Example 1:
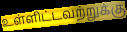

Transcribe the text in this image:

உள்ளிட்டவற்றுக்கு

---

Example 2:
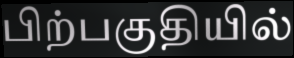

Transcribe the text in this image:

பிற்பகுதியில்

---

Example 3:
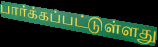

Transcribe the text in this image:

பார்க்கப்பட்டுள்ளது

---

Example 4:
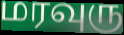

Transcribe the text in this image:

மரவுரு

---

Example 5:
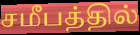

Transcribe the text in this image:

சமீபத்தில்